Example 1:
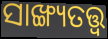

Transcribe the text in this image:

ସାଙ୍ଖ୍ୟତତ୍ତ୍ଵ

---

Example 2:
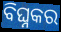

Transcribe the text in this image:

ବିଘ୍ନକର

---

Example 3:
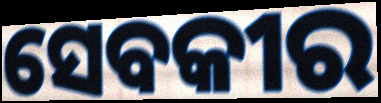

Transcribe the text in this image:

ସେବକୀର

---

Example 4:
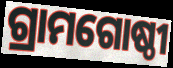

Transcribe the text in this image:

ଗ୍ରାମଗୋଷ୍ଠୀ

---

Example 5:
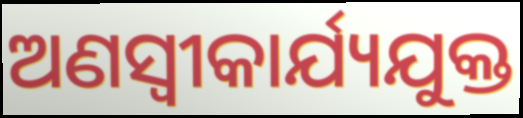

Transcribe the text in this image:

ଅଣସ୍ବୀକାର୍ଯ୍ୟଯୁକ୍ତ